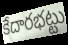
కేదారభట్టు